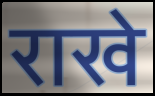
राखे